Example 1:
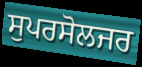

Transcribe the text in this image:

ਸੁਪਰਸੋਲਜਰ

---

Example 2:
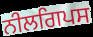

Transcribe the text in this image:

ਨੀਲਗਿਪਸ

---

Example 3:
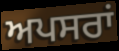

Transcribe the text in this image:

ਅਪਸਰਾਂ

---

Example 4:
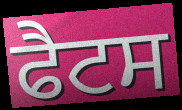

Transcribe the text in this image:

ਫੈਟਸ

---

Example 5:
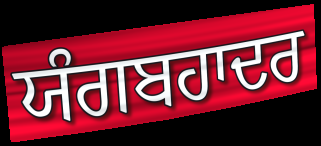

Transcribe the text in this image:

ਯੰਗਬਹਾਦਰ